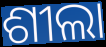
ଶୀଲା